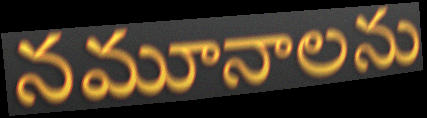
నమూనాలను